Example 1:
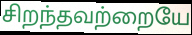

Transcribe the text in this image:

சிறந்தவற்றையே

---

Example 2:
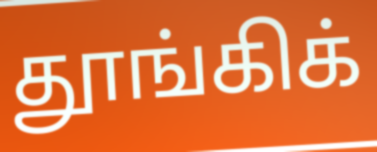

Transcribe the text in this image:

தூங்கிக்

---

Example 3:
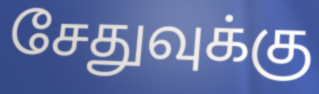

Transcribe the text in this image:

சேதுவுக்கு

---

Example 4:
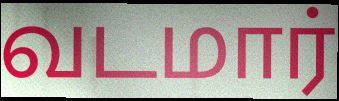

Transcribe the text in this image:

வடமார்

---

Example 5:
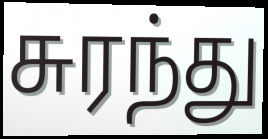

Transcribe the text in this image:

சுரந்து